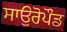
ਸਾਉਰੋਪੌਡ